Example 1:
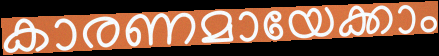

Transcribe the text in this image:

കാരണമായേക്കാം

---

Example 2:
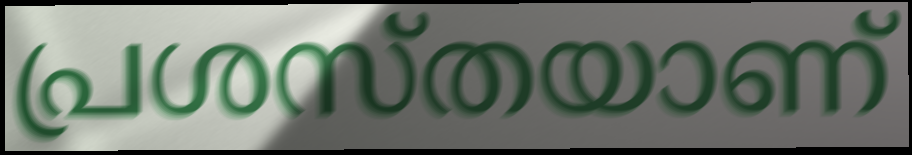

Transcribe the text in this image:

പ്രശസ്തയാണ്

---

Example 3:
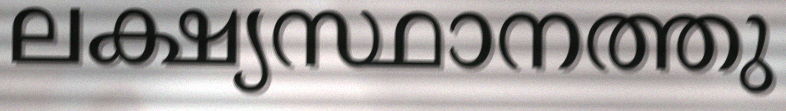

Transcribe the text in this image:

ലക്ഷ്യസ്ഥാനത്തു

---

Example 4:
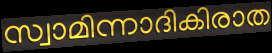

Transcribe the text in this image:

സ്വാമിന്നാദികിരാത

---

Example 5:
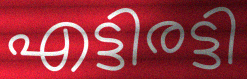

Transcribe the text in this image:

എട്ടിരട്ടി